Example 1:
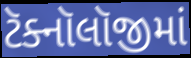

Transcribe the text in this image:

ટૅક્નૉલૉજીમાં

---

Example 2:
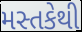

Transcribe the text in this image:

મસ્તકેથી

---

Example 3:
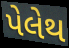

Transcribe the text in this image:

પેલેથ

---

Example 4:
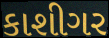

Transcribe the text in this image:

કાશીગર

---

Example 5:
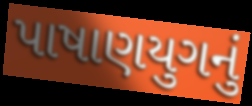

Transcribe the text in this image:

પાષાણયુગનું